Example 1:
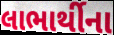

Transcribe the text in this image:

લાભાર્થીના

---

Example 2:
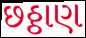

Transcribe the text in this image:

છઠ્ઠાણ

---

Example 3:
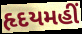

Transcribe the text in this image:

હૃદયમહીં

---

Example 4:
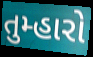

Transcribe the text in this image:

તુમ્હારો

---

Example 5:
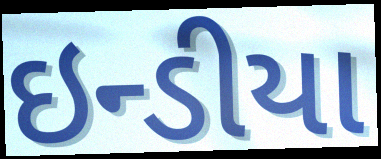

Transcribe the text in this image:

ઇન્ડીયા